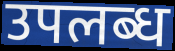
उपलब्ध